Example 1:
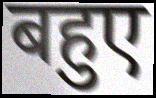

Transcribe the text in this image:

बहुए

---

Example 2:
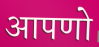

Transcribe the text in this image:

आपणो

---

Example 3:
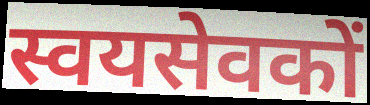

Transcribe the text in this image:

स्वयसेवकों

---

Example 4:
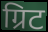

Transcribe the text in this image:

ग्रिट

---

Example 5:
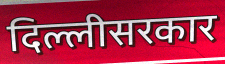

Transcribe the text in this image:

दिल्लीसरकार